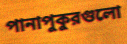
পানাপুকুরগুলো